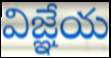
విజ్ఞేయ